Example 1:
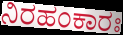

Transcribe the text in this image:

ನಿರಹಂಕಾರಃ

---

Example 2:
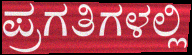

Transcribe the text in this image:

ಪ್ರಗತಿಗಳಲ್ಲಿ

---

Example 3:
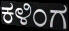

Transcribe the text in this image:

ಕಳಿಂಗ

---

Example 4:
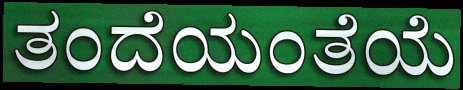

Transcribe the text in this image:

ತಂದೆಯಂತೆಯೆ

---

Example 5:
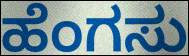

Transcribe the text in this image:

ಹೆಂಗಸು